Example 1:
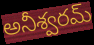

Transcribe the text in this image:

అనీశ్వరమ్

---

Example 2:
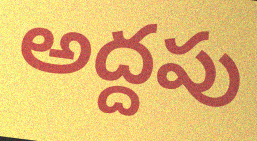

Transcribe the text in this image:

అద్దపు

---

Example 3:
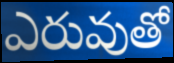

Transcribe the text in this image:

ఎరువుతో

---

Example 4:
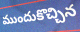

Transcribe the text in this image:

ముందుకొచ్చిన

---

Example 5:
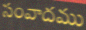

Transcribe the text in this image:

సంవాదము